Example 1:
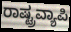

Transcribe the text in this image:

ರಾಷ್ಟ್ರವ್ಯಾಪಿ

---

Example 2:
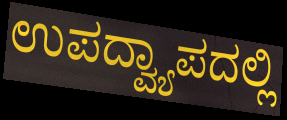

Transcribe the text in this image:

ಉಪದ್ವ್ಯಾಪದಲ್ಲಿ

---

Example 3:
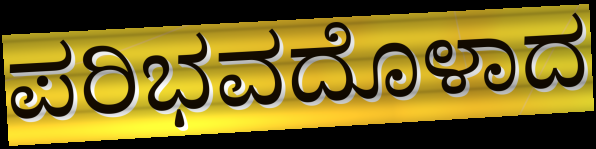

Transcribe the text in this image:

ಪರಿಭವದೊಳಾದ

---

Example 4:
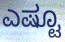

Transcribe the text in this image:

ಎಷ್ಟೂ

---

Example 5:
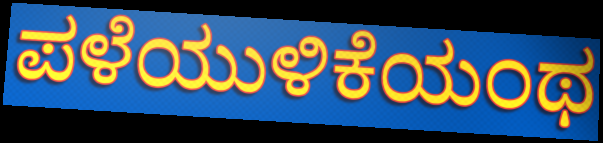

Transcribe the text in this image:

ಪಳೆಯುಳಿಕೆಯಂಥ